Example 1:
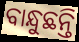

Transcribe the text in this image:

ବାନ୍ଧୁଛନ୍ତି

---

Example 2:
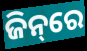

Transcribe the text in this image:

ଜିନ୍‌ରେ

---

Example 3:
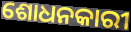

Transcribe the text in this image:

ଶୋଧନକାରୀ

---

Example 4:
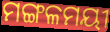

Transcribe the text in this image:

ମଙ୍ଗଳମୟୀ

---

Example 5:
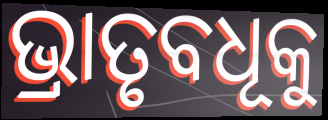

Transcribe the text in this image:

ଭ୍ରାତୃବଧୂକୁ